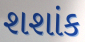
શશાંક